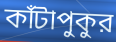
কাঁটাপুকুর